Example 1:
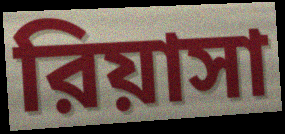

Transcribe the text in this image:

রিয়াসা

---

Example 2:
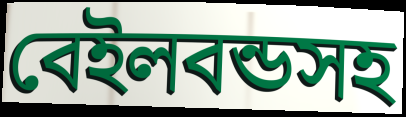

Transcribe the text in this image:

বেইলবন্ডসহ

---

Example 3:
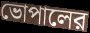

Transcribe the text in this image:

ভোপালের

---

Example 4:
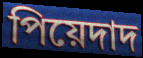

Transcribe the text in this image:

পিয়েদাদ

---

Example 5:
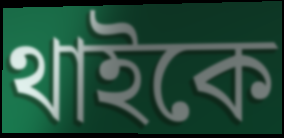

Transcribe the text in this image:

থাইকে